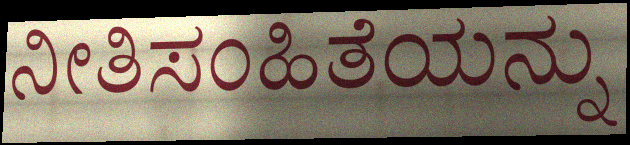
ನೀತಿಸಂಹಿತೆಯನ್ನು